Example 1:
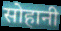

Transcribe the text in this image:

सोहानी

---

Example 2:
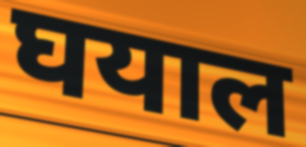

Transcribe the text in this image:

घयाल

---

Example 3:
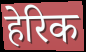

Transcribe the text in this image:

हेरिक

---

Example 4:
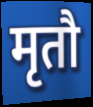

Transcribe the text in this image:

मृतौ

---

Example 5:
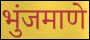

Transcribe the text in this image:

भुंजमाणे